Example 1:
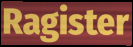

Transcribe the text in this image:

Ragister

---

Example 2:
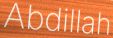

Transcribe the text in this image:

Abdillah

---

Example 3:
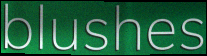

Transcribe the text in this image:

blushes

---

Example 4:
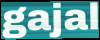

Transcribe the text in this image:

gajal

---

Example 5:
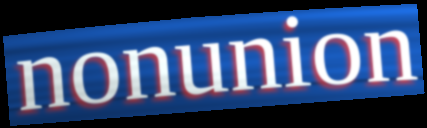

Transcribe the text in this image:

nonunion